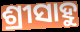
ଶ୍ରୀସାହୁ